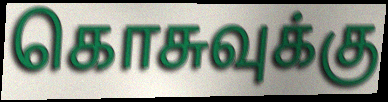
கொசுவுக்கு